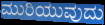
ಮುರಿಯುವುದು